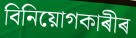
বিনিয়োগকাৰীৰ